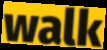
walk